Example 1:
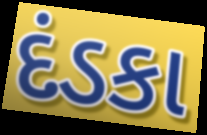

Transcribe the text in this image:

દંડકા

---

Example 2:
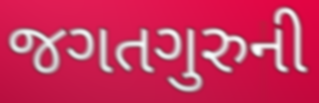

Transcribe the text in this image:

જગતગુરુની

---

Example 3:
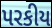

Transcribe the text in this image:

પરકીય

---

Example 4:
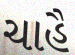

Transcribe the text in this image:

ચાહૈ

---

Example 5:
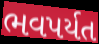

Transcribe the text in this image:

ભવપર્યત